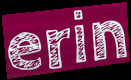
erin